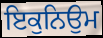
ਇਕੁਨਿਉਮ